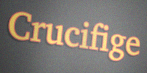
Crucifige